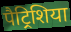
पैट्रिशिया